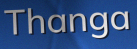
Thanga